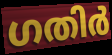
ഗതിർ